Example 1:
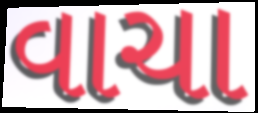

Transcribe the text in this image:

વાચા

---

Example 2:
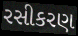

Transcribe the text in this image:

રસીકરણ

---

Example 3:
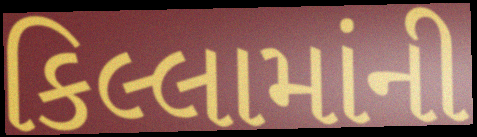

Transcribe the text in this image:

કિલ્લામાંની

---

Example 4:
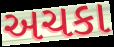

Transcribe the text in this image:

અચકા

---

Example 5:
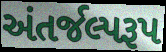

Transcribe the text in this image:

અંતર્જલ્પરૂપ